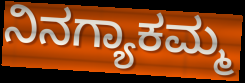
ನಿನಗ್ಯಾಕಮ್ಮ